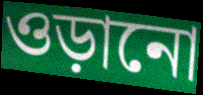
ওড়ানো